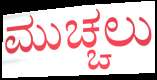
ಮುಚ್ಚಲು